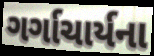
ગર્ગાચાર્યના